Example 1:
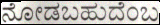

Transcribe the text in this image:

ನೋಡಬಹುದೆಂಬ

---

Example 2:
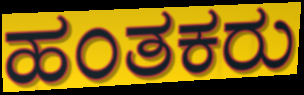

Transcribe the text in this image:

ಹಂತಕರು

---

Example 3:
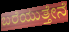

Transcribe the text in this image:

ಬರೆಯುತ್ತೇನೆ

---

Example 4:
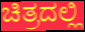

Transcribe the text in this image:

ಚಿತ್ರದಲ್ಲಿ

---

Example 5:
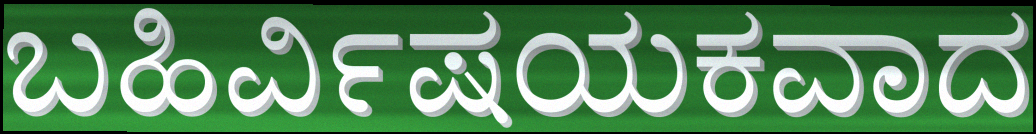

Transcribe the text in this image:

ಬಹಿರ್ವಿಷಯಕವಾದ